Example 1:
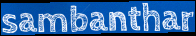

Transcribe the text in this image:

sambanthar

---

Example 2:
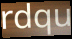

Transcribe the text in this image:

rdqu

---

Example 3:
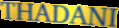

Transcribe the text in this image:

THADANI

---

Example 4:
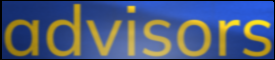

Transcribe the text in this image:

advisors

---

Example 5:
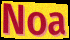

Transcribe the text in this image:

Noa